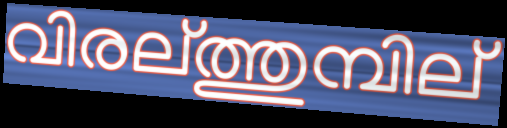
വിരല്ത്തുമ്പില്